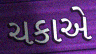
ચકાએ